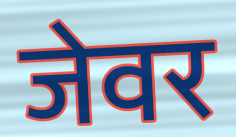
जेवर